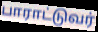
பாராட்டுவர்